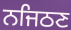
ਨਜਿਠਣ